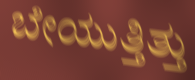
ಬೇಯುತ್ತಿತ್ತು